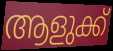
ആളുക്ക്